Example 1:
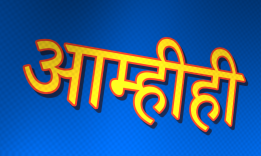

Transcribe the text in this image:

आम्हीही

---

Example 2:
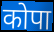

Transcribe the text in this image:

कोपा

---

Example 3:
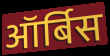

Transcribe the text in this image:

ऑर्बिस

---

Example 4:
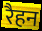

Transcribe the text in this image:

रैहन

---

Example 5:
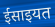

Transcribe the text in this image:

ईसाइयत